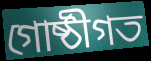
গোষ্ঠীগত